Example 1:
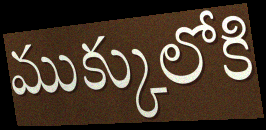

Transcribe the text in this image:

ముక్కులోకి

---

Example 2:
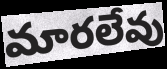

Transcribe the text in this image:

మారలేవు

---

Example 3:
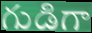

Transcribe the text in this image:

గుడిగా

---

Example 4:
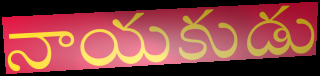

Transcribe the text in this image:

నాయకుడు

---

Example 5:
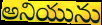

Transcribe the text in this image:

అనియును